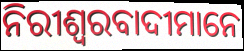
ନିରୀଶ୍ବରବାଦୀମାନେ